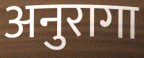
अनुरागा